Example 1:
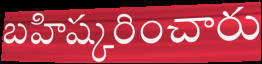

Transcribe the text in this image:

బహిష్కరించారు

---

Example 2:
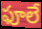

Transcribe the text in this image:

ఫూలే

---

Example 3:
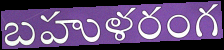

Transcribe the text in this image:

బహుళరంగ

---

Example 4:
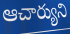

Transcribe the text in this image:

ఆచార్యుని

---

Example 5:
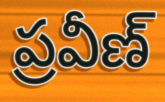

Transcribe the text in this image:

ప్రవీణ్